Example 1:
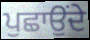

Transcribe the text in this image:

ਪੁਛਾਉਂਦੇ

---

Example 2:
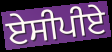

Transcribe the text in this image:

ਏਸੀਪੀਏ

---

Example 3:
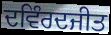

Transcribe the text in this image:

ਦਵਿੰਰਦਜੀਤ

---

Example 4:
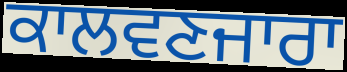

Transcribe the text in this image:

ਕਾਲਵਣਜਾਰਾ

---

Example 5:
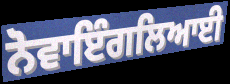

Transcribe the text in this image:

ਨੋਵਾਇੰਗਲਿਆਈ